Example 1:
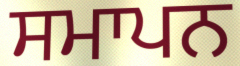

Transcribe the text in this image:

ਸਮਾਪਨ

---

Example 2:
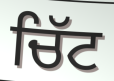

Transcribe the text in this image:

ਚਿੱਟ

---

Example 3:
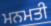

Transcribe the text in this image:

ਮਨਮਤੀ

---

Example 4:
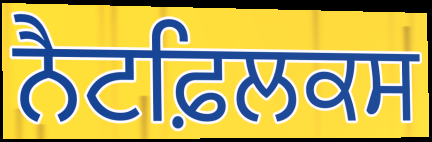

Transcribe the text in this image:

ਨੈਟਫ਼ਿਲਕਸ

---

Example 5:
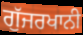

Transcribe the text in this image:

ਗੁੱਜਰਖਾਨੀ